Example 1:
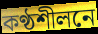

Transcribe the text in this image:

কণ্ঠশীলনে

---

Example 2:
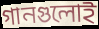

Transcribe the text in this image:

গানগুলোই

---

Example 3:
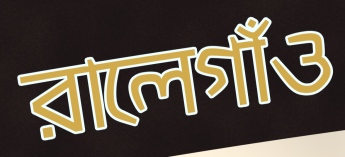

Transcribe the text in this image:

রালেগাঁও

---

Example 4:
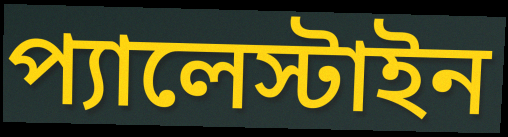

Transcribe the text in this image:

প্যালেস্টাইন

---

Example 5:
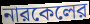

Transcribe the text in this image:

নারকেলের